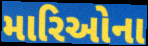
મારિઓના